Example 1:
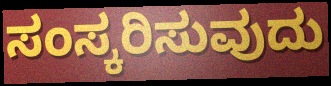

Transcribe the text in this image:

ಸಂಸ್ಕರಿಸುವುದು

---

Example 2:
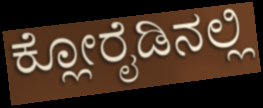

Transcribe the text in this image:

ಕ್ಲೋರೈಡಿನಲ್ಲಿ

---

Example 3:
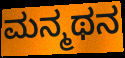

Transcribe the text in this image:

ಮನ್ಮಥನ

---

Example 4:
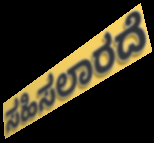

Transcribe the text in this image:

ಸಹಿಸಲಾರದೆ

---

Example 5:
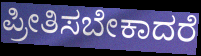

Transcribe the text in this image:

ಪ್ರೀತಿಸಬೇಕಾದರೆ